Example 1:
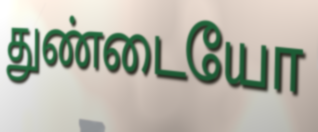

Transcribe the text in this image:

துண்டையோ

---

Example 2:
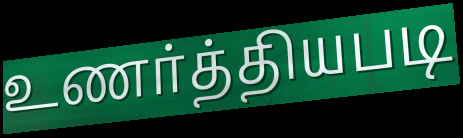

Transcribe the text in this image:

உணர்த்தியபடி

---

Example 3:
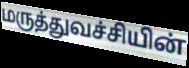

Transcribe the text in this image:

மருத்துவச்சியின்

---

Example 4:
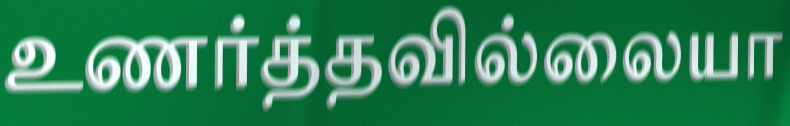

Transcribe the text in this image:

உணர்த்தவில்லையா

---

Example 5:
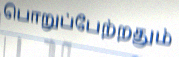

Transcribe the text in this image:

பொறுப்பேற்றதும்